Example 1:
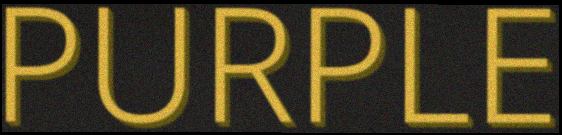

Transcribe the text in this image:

PURPLE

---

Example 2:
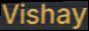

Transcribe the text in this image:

Vishay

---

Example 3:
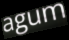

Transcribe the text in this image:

agum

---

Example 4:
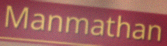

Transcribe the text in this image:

Manmathan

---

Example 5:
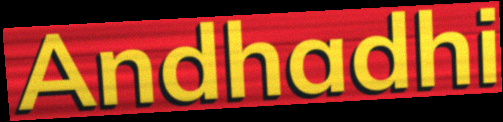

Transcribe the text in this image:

Andhadhi